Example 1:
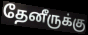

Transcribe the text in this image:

தேனீருக்கு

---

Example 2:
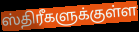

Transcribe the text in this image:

ஸ்திரீகளுக்குள்ள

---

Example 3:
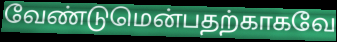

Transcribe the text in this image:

வேண்டுமென்பதற்காகவே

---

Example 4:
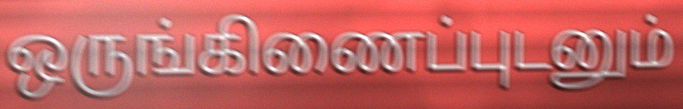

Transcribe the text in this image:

ஒருங்கிணைப்புடனும்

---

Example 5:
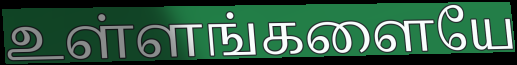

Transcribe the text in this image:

உள்ளங்களையே